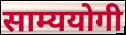
साम्ययोगी